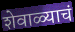
शेवाळ्याचं